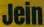
Jein